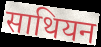
साथियन